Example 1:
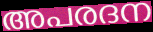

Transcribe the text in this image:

അപരദന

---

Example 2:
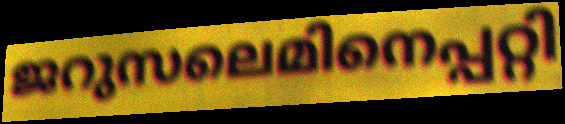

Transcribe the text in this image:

ജറുസലെമിനെപ്പറ്റി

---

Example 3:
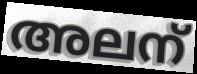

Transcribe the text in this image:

അലന്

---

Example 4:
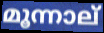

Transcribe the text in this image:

മൂന്നാല്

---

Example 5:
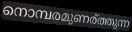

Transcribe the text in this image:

നൊമ്പരമുണര്ത്തുന്ന